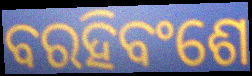
ବରହିବଂଶେ